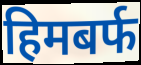
हिमबर्फ